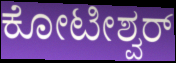
ಕೋಟೀಶ್ವರ್